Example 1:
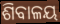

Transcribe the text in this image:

ଶିବାଳୟ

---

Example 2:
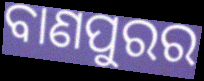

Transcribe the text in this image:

ବାଣପୁରର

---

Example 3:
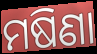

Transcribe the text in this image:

ମଷିଣା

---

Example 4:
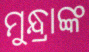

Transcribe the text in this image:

ମୁନ୍ଧ୍ରାଙ୍କ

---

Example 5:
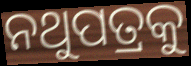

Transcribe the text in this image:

ନଥୁପତ୍ରକୁ